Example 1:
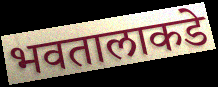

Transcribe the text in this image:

भवतालाकडे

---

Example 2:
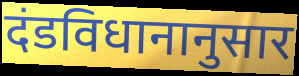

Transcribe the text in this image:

दंडविधानानुसार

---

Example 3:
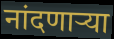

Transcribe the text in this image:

नांदणार्‍या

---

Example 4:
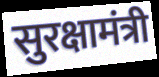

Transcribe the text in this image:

सुरक्षामंत्री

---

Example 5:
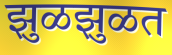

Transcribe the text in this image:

झुळझुळत